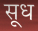
सूध